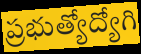
ప్రభుత్యోద్యోగి